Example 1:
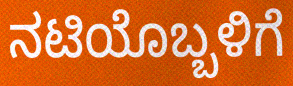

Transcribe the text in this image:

ನಟಿಯೊಬ್ಬಳಿಗೆ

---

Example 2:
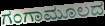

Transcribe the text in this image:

ಗಂಗಾಮೂಲದ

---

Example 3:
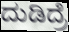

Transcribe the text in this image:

ದುಡಿದ್ರೆ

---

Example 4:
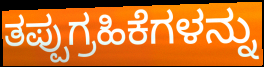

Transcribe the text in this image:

ತಪ್ಪುಗ್ರಹಿಕೆಗಳನ್ನು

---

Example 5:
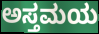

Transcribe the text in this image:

ಅಸ್ತಮಯ